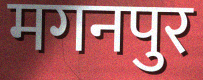
मगनपुर